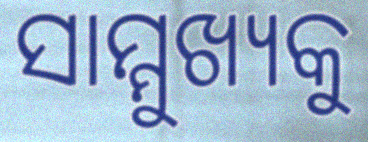
ସାମ୍ମୁଖ୍ୟକୁ